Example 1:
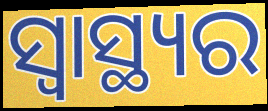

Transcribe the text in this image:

ସ୍ବାସ୍ଥ୍ୟର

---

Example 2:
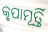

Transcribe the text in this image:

କୃପାମୂର୍ତ୍ତି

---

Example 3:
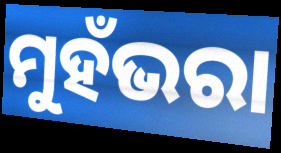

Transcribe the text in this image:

ମୁହଁଭରା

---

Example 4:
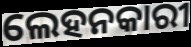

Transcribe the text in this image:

ଲେହନକାରୀ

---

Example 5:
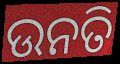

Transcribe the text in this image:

ଉନତି